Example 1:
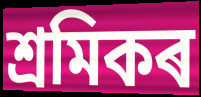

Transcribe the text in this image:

শ্ৰমিকৰ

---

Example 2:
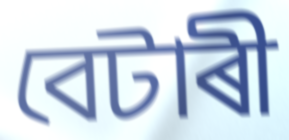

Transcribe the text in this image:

বেটাৰী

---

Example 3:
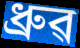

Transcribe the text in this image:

ধ্ৰুৱ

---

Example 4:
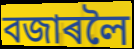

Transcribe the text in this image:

বজাৰলৈ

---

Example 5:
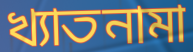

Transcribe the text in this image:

খ্যাতনামা